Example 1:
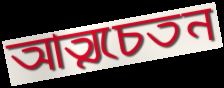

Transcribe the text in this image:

আত্মচেতন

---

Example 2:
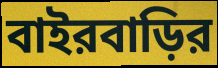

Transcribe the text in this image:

বাইরবাড়ির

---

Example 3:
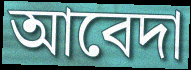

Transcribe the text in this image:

আবেদা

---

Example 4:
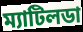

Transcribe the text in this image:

ম্যাটিলডা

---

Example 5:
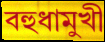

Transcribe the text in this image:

বহুধামুখী